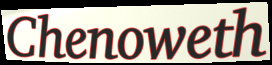
Chenoweth